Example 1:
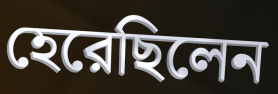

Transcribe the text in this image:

হেরেছিলেন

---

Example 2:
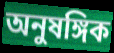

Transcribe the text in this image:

অনুষঙ্গিক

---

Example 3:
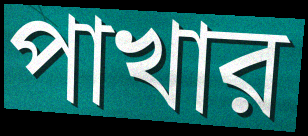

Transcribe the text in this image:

পাখার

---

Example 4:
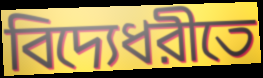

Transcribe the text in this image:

বিদ্যেধরীতে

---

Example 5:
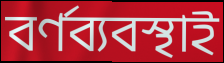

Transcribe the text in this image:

বর্ণব্যবস্থাই